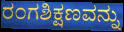
ರಂಗಶಿಕ್ಷಣವನ್ನು